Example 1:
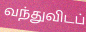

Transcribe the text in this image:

வந்துவிடப்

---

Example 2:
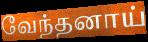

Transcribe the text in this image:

வேந்தனாய்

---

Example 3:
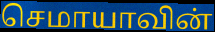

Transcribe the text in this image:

செமாயாவின்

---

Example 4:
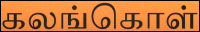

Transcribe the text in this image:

கலங்கொள்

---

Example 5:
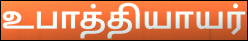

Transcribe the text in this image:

உபாத்தியாயர்